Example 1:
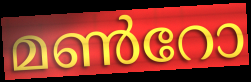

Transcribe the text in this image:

മൺറോ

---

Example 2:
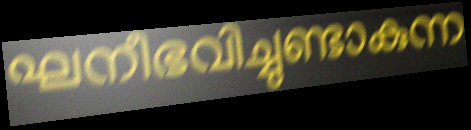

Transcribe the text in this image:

ഘനീഭവിച്ചുണ്ടാകുന്ന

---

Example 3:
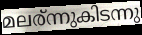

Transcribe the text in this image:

മലര്ന്നുകിടന്നു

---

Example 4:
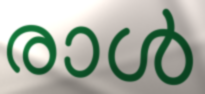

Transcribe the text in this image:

രാൾ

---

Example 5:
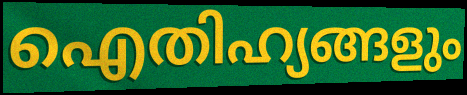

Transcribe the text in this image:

ഐതിഹ്യങ്ങളും